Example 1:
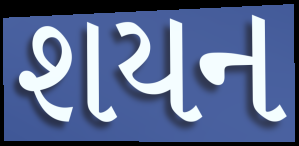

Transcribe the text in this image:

શયન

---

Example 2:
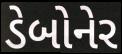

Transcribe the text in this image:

ડેબોનેર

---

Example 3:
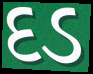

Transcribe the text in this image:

દડ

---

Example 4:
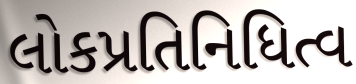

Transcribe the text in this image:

લોકપ્રતિનિધિત્વ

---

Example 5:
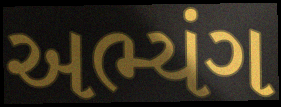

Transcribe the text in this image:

અભ્યંગ